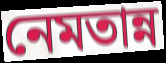
নেমতান্ন